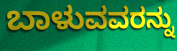
ಬಾಳುವವರನ್ನು